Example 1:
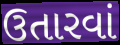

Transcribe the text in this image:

ઉતારવાં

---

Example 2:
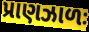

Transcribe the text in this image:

પ્રાણઝાળઃ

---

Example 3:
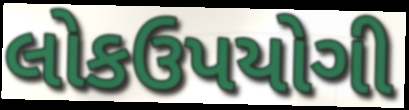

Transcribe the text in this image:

લોકઉપયોગી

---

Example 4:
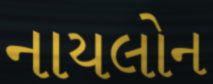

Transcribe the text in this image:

નાયલોન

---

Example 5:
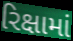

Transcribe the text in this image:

રિક્ષામાં